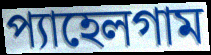
প্যাহেলগাম